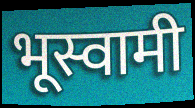
भूस्‍वामी